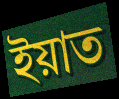
ইয়াত